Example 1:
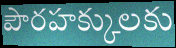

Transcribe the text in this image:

పౌరహక్కులకు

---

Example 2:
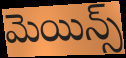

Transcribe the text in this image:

మెయిన్స్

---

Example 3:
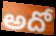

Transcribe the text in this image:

అదో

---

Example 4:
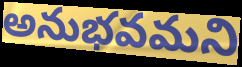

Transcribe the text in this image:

అనుభవమని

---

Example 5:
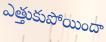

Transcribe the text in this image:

ఎత్తుకుపోయిందా